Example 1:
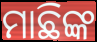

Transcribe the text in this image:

ମାଛିଙ୍କ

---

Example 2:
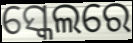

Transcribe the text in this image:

ସ୍କେଲରେ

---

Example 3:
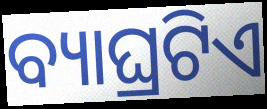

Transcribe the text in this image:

ବ୍ୟାଘ୍ରଟିଏ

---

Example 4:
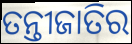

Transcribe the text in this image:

ତନ୍ତୀଜାତିର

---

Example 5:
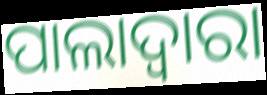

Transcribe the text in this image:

ପାଲାଦ୍ୱାରା